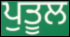
ਪੁਤੂਲ